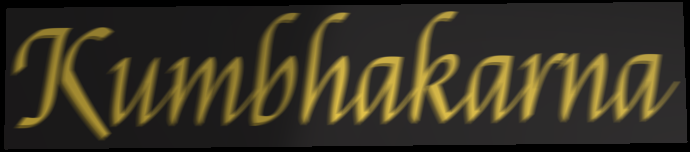
Kumbhakarna